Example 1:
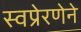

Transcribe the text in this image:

स्वप्रेरणेने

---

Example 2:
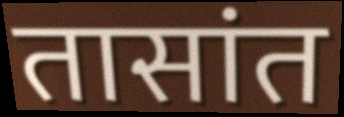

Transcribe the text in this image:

तासांत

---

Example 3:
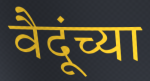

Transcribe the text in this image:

वैदूंच्या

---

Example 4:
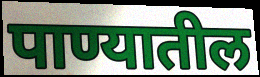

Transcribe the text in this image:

पाण्यातील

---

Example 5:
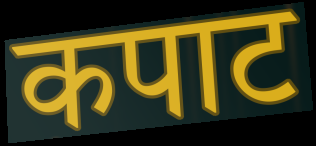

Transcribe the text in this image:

कपाट